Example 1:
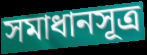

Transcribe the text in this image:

সমাধানসূত্ৰ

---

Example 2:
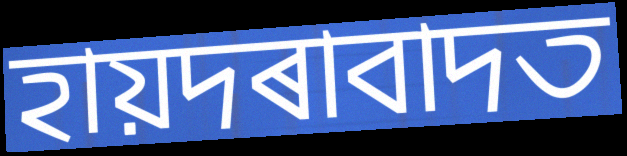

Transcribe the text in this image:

হায়দৰাবাদত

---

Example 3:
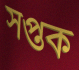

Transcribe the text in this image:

সপ্তক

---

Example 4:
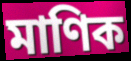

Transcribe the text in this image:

মাণিক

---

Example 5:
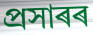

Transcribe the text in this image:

প্ৰসাৰৰ